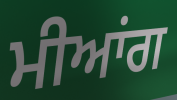
ਮੀਆਂਗ